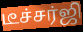
டீச்சர்ஜி